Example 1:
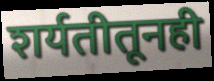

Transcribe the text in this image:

शर्यतीतूनही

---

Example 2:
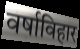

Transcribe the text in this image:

वर्षाविहार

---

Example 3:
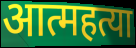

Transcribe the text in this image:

आत्महत्या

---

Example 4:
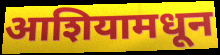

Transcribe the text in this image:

आशियामधून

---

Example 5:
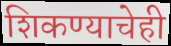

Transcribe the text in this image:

शिकण्याचेही